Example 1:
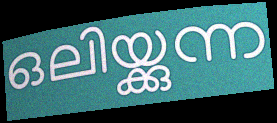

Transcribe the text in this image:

ഒലിയ്ക്കുന്ന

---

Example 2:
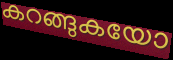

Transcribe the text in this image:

കറങ്ങുകയോ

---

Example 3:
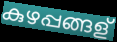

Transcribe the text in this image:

കുഴപ്പങ്ങള്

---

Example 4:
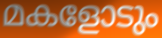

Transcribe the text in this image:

മകളോടും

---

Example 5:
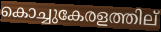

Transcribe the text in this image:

കൊച്ചുകേരളത്തില്